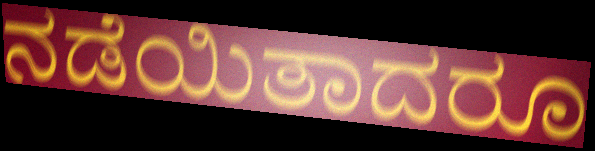
ನಡೆಯಿತಾದರೂ